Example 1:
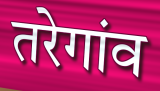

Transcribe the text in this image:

तरेगांव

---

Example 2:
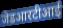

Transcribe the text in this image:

जेडआरटीआई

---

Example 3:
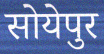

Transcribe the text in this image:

सोयेपुर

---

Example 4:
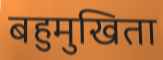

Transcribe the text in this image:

बहुमुखिता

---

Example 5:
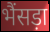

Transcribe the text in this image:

भैंसड़ा